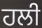
ਹਲੀ